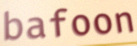
bafoon